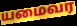
யமைவர